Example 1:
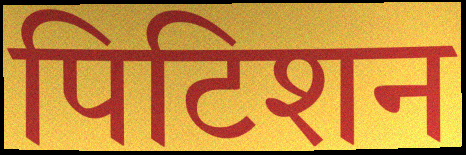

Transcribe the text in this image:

पिटिशन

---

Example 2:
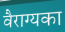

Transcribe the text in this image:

वैराग्यका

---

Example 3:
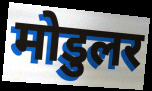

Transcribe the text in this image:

मोडुलर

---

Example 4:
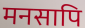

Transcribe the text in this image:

मनसापि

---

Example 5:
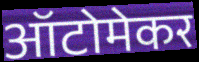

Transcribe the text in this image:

ऑटोमेकर